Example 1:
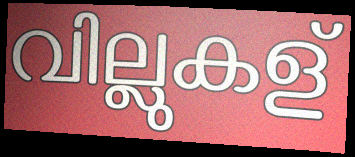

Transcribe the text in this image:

വില്ലുകള്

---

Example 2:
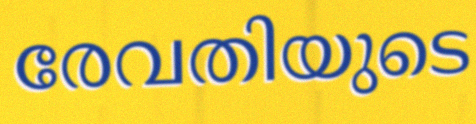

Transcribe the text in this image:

രേവതിയുടെ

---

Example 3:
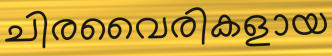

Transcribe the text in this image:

ചിരവൈരികളായ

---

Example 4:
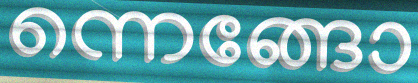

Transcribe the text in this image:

ന്നെങ്ങോ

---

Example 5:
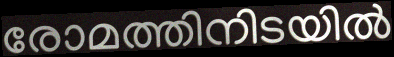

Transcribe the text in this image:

രോമത്തിനിടയിൽ